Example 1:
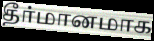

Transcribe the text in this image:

தீர்மானமாக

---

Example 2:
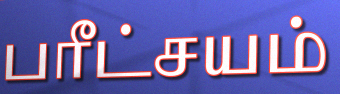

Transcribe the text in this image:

பரீட்சயம்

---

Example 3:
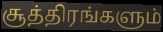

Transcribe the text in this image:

சூத்திரங்களும்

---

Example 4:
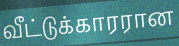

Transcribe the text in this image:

வீட்டுக்காரரான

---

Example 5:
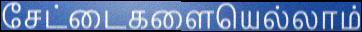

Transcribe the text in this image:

சேட்டைகளையெல்லாம்